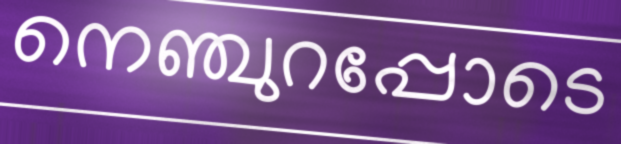
നെഞ്ചുറപ്പോടെ